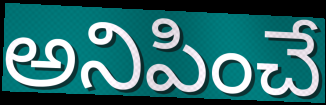
అనిపించే